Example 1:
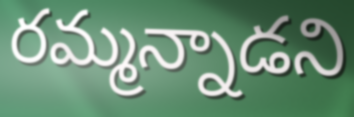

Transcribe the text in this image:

రమ్మన్నాడని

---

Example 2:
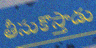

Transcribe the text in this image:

తీసుకొస్తాడు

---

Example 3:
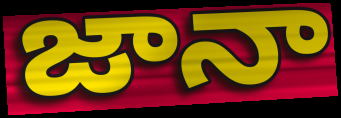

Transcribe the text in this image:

జానా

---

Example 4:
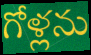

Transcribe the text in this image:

గోళ్లను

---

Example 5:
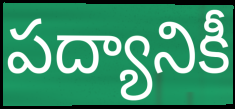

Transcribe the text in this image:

పద్యానికీ